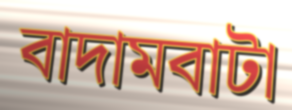
বাদামবাটা